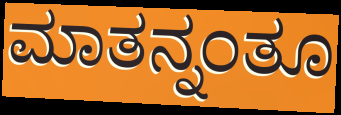
ಮಾತನ್ನಂತೂ